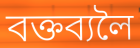
বক্তব্যলৈ